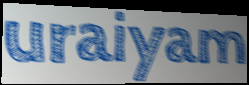
uraiyam